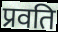
प्रवति